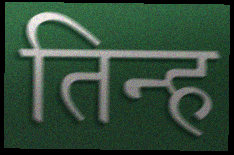
तिन्ह